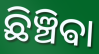
ଛିଞ୍ଚିଵା